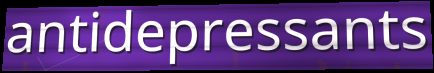
antidepressants